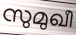
സുമുഖീ